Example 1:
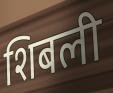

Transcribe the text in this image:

शिबली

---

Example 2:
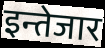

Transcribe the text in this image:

इन्तेजार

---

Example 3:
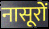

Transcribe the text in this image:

नासूरों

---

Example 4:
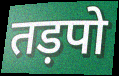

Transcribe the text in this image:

तड़पो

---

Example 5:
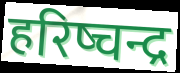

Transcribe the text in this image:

हरिष्चन्द्र